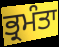
ਭ੍ਰਮੰਤਾ